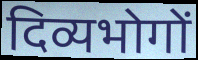
दिव्यभोगों